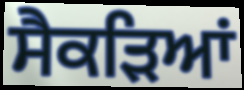
ਸੈਕੜਿਆਂ